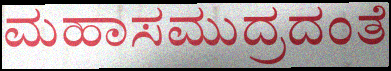
ಮಹಾಸಮುದ್ರದಂತೆ